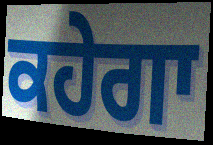
ਕਹੇਗਾ